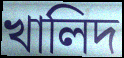
খালিদ